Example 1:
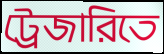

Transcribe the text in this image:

ট্রেজারিতে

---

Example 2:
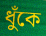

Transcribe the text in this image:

ধুঁকে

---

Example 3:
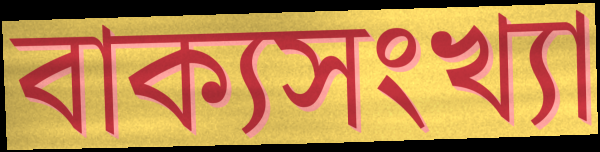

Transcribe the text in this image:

বাক্যসংখ্যা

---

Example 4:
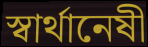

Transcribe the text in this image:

স্বার্থানেষী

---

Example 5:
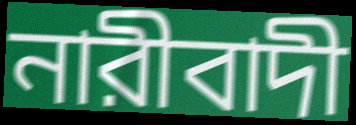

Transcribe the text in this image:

নারীবাদী